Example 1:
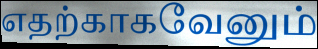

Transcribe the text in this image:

எதற்காகவேனும்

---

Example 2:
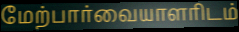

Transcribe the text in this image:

மேற்பார்வையாளரிடம்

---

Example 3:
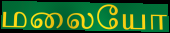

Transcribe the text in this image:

மலையோ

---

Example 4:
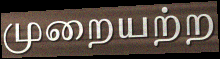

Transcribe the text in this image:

முறையற்ற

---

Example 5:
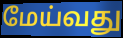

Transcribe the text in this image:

மேய்வது